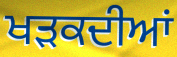
ਖੜਕਦੀਆਂ